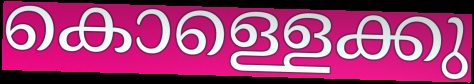
കൊള്ളെക്കു